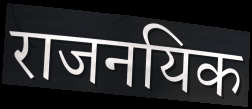
राजनयिक